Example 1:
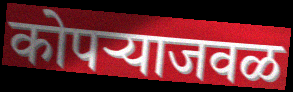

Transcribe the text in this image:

कोपऱ्याजवळ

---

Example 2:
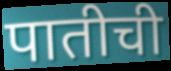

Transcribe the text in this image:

पातीची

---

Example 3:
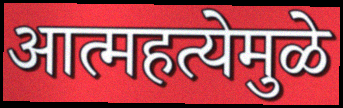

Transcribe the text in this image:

आत्महत्येमुळे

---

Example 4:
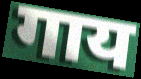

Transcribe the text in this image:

गाय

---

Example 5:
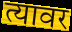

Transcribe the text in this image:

त्‍यावर